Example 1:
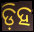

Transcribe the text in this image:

ଡ଼ିହ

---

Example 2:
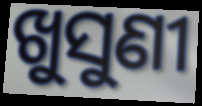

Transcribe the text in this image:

ଖୁସୁଣୀ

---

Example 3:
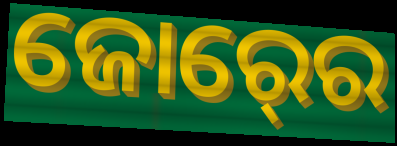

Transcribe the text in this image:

ଜୋର୍‍ରେ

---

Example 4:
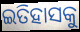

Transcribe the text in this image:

ଇତିହାସକୁ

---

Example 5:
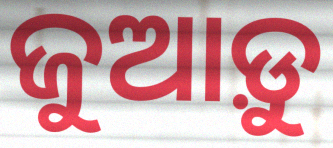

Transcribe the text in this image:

ଜୁଆଡ଼ୁ